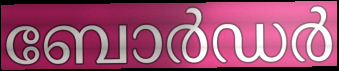
ബോർഡർ